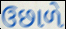
ઉછાળે